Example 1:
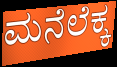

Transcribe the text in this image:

ಮನೆಲೆಕ್ಕ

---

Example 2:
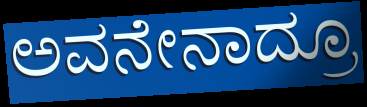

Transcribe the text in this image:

ಅವನೇನಾದ್ರೂ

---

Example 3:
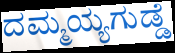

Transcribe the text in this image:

ದಮ್ಮಯ್ಯಗುಡ್ಡೆ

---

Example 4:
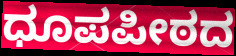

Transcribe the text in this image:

ಧೂಪಪೀಠದ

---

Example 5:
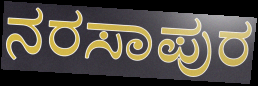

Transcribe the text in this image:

ನರಸಾಪುರ